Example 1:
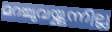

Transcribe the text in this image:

മറച്ചുവയ്ക്കുന്നില്ല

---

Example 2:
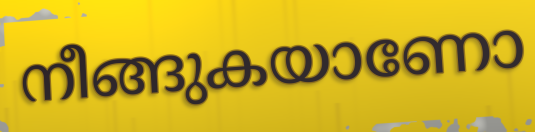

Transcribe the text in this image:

നീങ്ങുകയാണോ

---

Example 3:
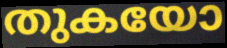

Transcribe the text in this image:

തുകയോ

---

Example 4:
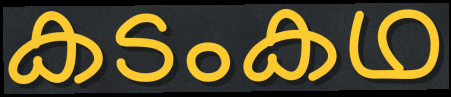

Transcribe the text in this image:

കടംകഥ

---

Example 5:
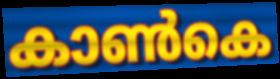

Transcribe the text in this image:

കാൺകെ